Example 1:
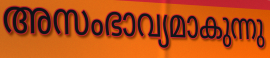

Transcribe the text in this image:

അസംഭാവ്യമാകുന്നു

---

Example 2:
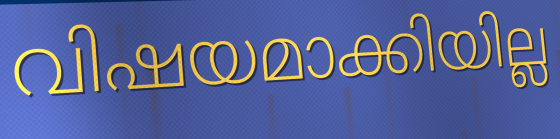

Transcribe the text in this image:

വിഷയമാക്കിയില്ല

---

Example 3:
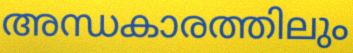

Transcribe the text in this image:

അന്ധകാരത്തിലും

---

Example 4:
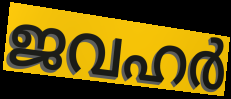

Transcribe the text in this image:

ജവഹർ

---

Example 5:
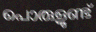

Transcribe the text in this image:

പൊരുളുണ്ട്